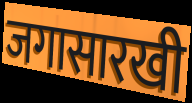
जगासारखी